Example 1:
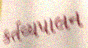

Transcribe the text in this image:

કર્તવ્યપાલન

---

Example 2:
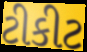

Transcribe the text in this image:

ટીકીટ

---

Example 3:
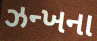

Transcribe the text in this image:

ઝન્ખના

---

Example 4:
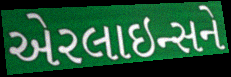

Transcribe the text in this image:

એરલાઇન્સને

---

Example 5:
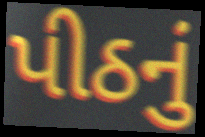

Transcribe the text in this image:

પીઠનું